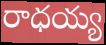
రాధయ్య